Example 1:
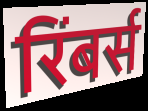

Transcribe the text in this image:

रिंबर्स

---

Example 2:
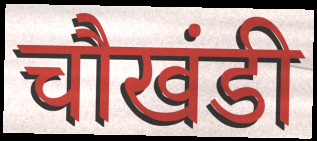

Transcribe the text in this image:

चौखंडी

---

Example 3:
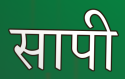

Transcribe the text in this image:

सापी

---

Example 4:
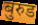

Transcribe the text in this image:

बुरुड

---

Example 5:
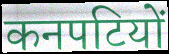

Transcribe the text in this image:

कनपटियों